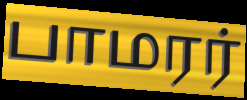
பாமரர்